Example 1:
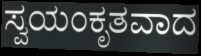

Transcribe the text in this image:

ಸ್ವಯಂಕೃತವಾದ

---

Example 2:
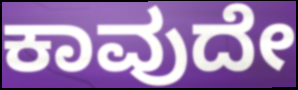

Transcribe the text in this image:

ಕಾವುದೇ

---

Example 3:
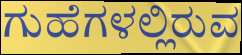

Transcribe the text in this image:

ಗುಹೆಗಳಲ್ಲಿರುವ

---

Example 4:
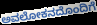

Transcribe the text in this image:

ಅವಲೋಕನದೊಂದಿಗೆ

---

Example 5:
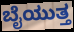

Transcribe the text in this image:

ಬೈಯುತ್ತ